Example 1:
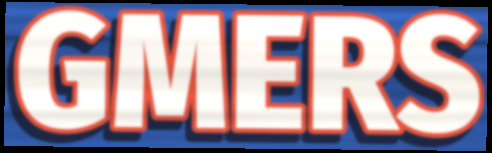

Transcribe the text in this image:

GMERS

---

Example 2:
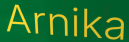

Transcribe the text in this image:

Arnika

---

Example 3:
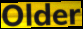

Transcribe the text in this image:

Older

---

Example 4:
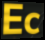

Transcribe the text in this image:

Ec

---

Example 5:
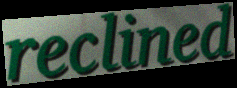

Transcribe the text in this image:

reclined